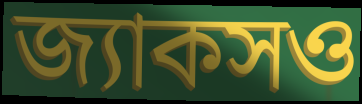
জ্যাকসও